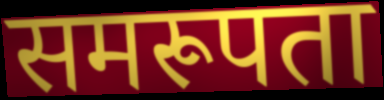
समरूपता